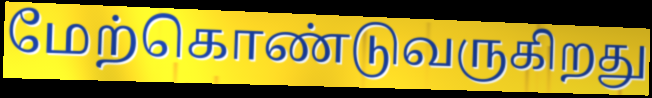
மேற்கொண்டுவருகிறது